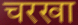
चरखा